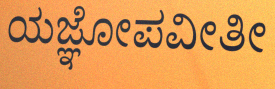
ಯಜ್ಞೋಪವೀತೀ